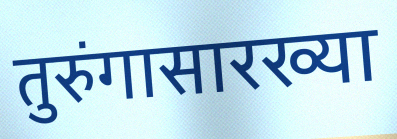
तुरुंगासारख्या